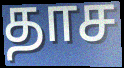
தாச